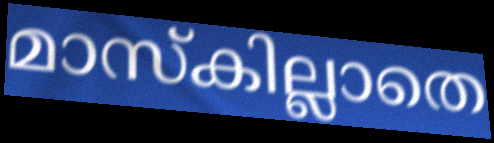
മാസ്കില്ലാതെ